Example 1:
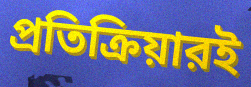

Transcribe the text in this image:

প্রতিক্রিয়ারই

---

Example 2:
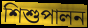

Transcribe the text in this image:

শিশুপালন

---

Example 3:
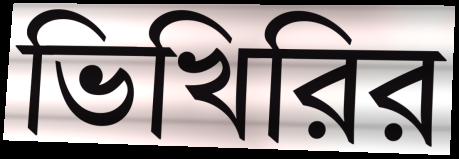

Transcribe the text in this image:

ভিখিরির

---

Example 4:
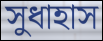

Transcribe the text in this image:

সুধাহাস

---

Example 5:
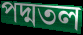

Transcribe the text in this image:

পদ্মতল